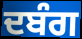
ਦਬੰਗ